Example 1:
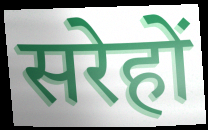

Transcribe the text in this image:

सरेहों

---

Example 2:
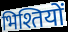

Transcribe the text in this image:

भिश्तियों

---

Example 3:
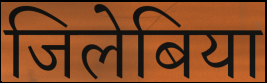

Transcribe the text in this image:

जिलेबिया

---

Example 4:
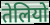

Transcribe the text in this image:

तेलियो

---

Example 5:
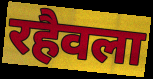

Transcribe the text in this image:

रहैवला